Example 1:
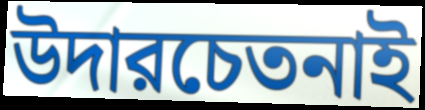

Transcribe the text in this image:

উদারচেতনাই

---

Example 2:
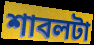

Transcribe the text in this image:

শাবলটা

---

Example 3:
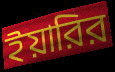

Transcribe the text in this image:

ইয়ারির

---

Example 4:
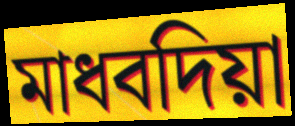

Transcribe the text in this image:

মাধবদিয়া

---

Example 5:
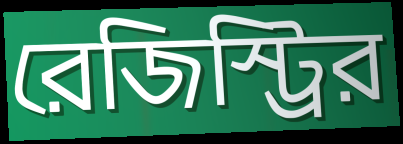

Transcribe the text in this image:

রেজিস্ট্রির